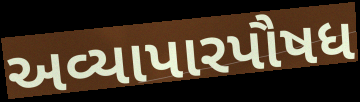
અવ્યાપારપૌષધ